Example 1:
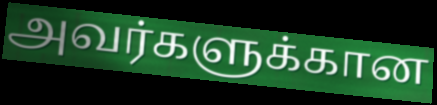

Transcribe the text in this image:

அவர்களுக்கான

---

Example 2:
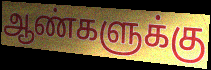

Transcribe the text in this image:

ஆண்களுக்கு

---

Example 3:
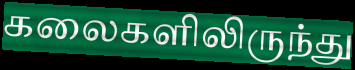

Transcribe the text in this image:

கலைகளிலிருந்து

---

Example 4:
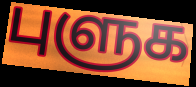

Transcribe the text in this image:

புளுக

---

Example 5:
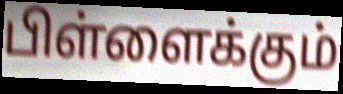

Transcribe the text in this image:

பிள்ளைக்கும்